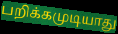
பறிக்கமுடியாது